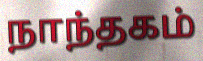
நாந்தகம்